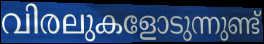
വിരലുകളോടുന്നുണ്ട്